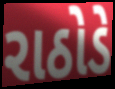
રાઠોડે